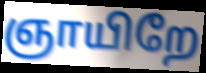
ஞாயிறே